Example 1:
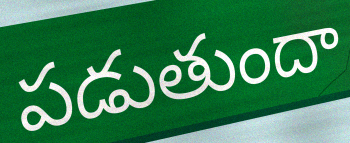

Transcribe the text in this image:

పడుతుందా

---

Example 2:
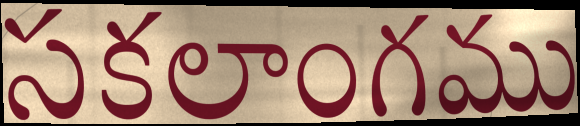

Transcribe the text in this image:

సకలాంగము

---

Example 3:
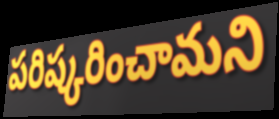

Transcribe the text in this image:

పరిష్కరించామని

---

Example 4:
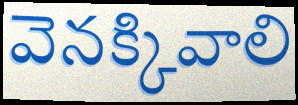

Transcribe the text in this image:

వెనక్కివాలి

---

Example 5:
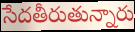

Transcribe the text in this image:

సేదతీరుతున్నారు